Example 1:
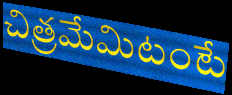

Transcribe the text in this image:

చిత్రమేమిటంటే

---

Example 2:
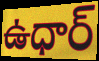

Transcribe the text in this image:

ఉధార్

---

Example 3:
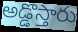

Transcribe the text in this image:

అడ్డొస్తారు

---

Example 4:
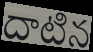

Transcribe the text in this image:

దాటిన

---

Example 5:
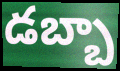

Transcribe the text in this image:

డబ్బా